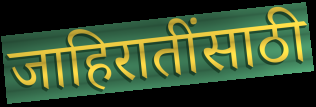
जाहिरातींसाठी